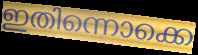
ഇതിന്നൊക്കെ